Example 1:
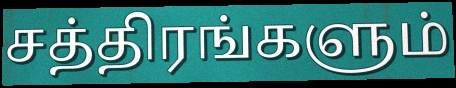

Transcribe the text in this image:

சத்திரங்களும்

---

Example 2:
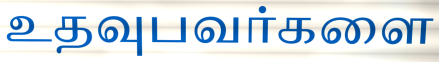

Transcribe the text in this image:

உதவுபவர்களை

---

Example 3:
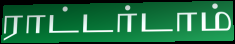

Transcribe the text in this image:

ராட்டர்டாம்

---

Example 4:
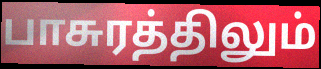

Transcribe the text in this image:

பாசுரத்திலும்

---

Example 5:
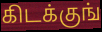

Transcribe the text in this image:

கிடக்குங்